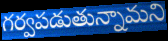
గర్వపడుతున్నామని